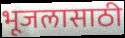
भूजलासाठी